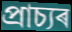
প্ৰাচ্যৰ